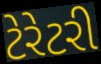
ટેરેટરી